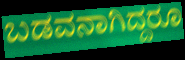
ಬಡವನಾಗಿದ್ದರೂ